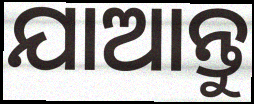
ଯାଆନ୍ତୁ